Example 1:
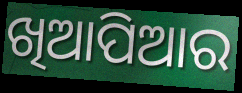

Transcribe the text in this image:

ଖିଆପିଆର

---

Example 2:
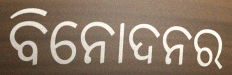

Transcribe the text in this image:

ବିନୋଦନର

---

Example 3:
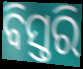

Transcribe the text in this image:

ବିସ୍ତରି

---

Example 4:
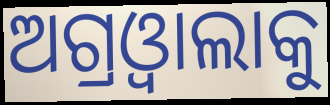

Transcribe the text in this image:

ଅଗ୍ରଓ୍ୱାଲାକୁ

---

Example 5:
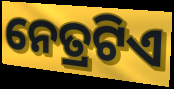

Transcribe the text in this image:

ନେତ୍ରଟିଏ